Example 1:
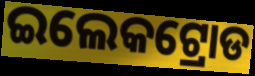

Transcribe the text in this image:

ଇଲେକଟ୍ରୋଡ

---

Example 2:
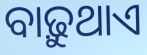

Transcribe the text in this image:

ବାଢ଼ୁଥାଏ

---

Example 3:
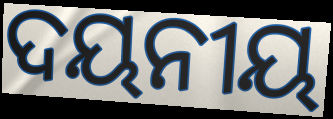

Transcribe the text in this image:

ଦୟନୀୟ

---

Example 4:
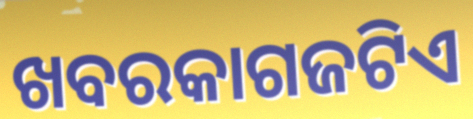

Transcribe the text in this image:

ଖବରକାଗଜଟିଏ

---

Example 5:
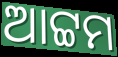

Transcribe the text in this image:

ଆଟ୍ଟମ